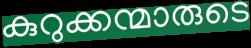
കുറുക്കന്മാരുടെ